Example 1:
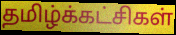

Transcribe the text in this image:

தமிழ்க்கட்சிகள்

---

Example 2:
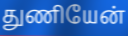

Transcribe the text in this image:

துணியேன்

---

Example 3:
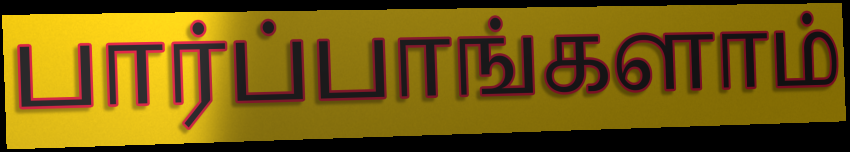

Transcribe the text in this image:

பார்ப்பாங்களாம்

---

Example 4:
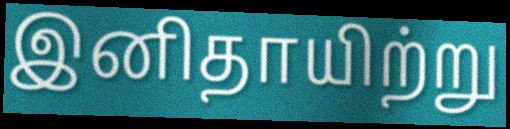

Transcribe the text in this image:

இனிதாயிற்று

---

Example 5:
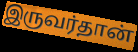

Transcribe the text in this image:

இருவர்தான்